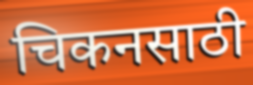
चिकनसाठी